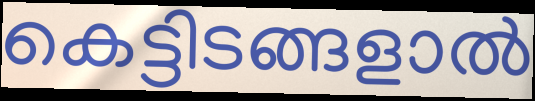
കെട്ടിടങ്ങളാൽ